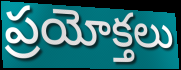
ప్రయోక్తలు